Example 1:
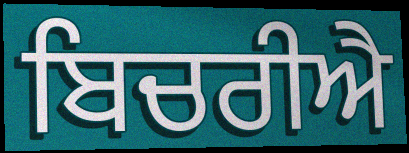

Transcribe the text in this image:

ਬਿਚਰੀਐ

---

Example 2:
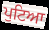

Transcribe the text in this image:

ਪੁਟਿਆ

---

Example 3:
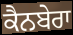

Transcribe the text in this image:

ਕੈਨਬੇਰਾ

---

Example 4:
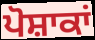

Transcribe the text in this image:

ਪੋਸ਼ਾਕਾਂ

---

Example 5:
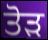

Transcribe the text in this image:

ਤੋੜ